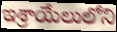
ఇశ్రాయేలులోని